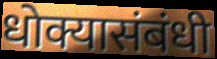
धोक्यासंबंधी